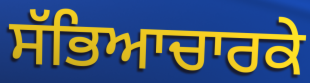
ਸੱਭਿਆਚਾਰਕੇ